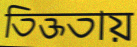
তিক্ততায়